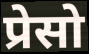
प्रेसो